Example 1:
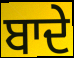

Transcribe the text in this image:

ਬਾਦੇ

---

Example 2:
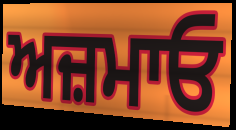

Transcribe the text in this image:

ਅਜ਼ਮਾਓ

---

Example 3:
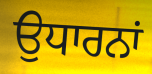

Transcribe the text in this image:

ਉਧਾਰਨਾਂ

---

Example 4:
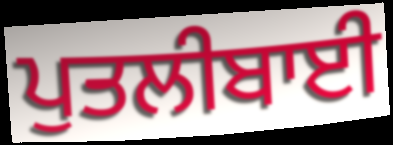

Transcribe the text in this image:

ਪੁਤਲੀਬਾਈ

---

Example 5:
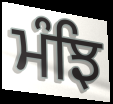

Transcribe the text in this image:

ਮੰਝਿ